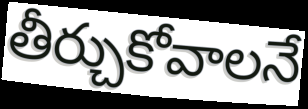
తీర్చుకోవాలనే